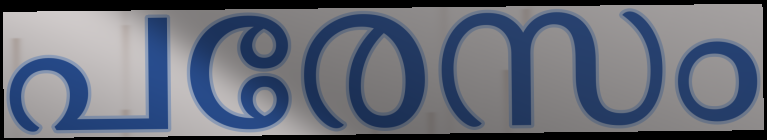
പരേസം